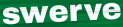
swerve